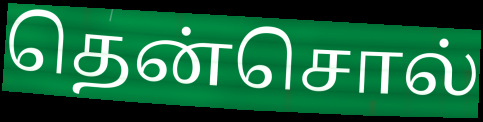
தென்சொல்